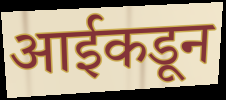
आईकडून